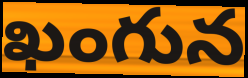
ఖంగున